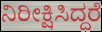
ನಿರೀಕ್ಷಿಸಿದ್ದರೆ